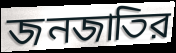
জনজাতির